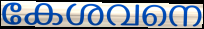
കേശവനെ